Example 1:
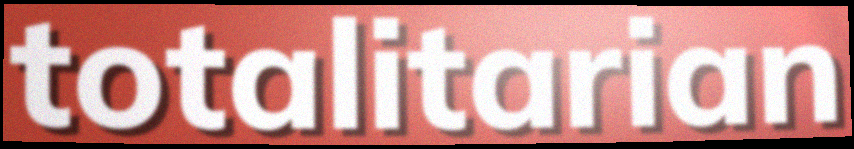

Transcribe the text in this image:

totalitarian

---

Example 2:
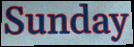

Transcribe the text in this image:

Sunday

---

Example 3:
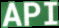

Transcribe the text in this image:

API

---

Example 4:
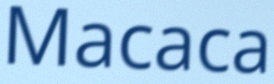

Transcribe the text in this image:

Macaca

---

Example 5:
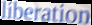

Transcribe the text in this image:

liberation